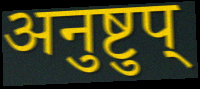
अनुष्टुप्